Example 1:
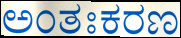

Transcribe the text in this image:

ಅಂತಃಕರಣ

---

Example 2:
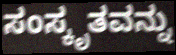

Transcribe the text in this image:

ಸಂಸ್ಕೃತವನ್ನು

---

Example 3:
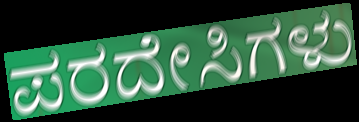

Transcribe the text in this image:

ಪರದೇಸಿಗಳು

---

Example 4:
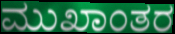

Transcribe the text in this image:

ಮುಖಾಂತರ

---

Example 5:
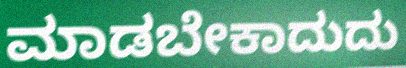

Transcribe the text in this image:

ಮಾಡಬೇಕಾದುದು